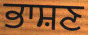
ਭਾਸ਼ਣ